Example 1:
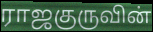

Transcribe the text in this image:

ராஜகுருவின்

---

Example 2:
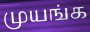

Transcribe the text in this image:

முயங்க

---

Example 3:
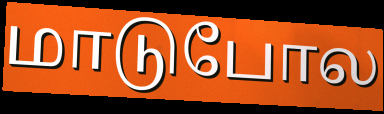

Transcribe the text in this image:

மாடுபோல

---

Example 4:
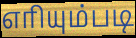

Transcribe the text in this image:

எரியும்படி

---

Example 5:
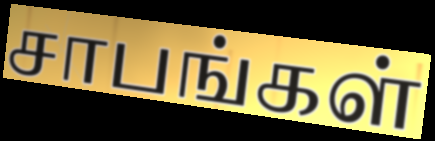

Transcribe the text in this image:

சாபங்கள்